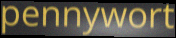
pennywort